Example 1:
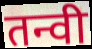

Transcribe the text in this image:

तन्वी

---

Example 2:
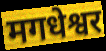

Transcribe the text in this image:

मगधेश्वर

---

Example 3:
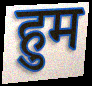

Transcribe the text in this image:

हुम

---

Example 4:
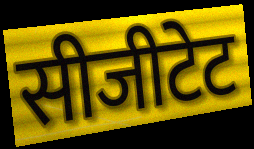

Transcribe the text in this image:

सीजीटेट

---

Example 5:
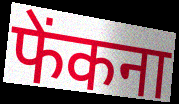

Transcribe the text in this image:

फेंकना